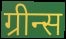
ग्रीन्स